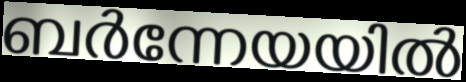
ബർന്നേയയിൽ